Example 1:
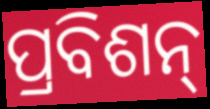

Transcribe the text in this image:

ପ୍ରବିଶନ୍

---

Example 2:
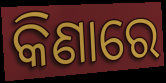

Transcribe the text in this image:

କିଣାରେ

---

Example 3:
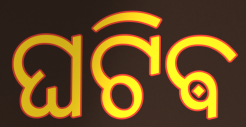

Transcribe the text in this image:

ଘଟିଵ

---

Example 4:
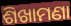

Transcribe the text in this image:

ଶିଖାମଣା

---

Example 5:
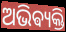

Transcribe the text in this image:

ଅଭିଵ୍ୟକ୍ତି